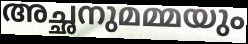
അച്ഛനുമമ്മയും